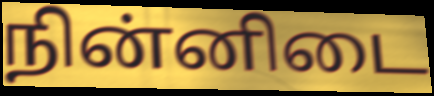
நின்னிடை